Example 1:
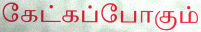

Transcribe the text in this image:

கேட்கப்போகும்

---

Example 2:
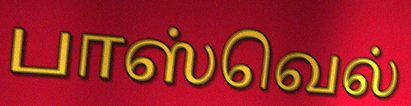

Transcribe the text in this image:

பாஸ்வெல்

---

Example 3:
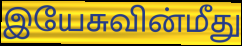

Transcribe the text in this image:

இயேசுவின்மீது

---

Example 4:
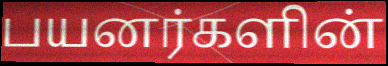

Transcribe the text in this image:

பயனர்களின்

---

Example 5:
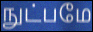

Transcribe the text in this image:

நுட்பமே